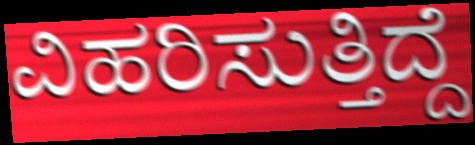
ವಿಹರಿಸುತ್ತಿದ್ದೆ